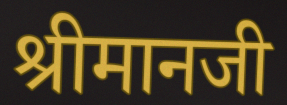
श्रीमानजी